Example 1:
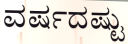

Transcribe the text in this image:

ವರ್ಷದಷ್ಟು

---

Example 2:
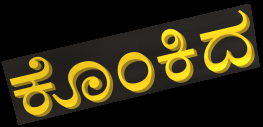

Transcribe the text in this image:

ಕೊಂಕಿದ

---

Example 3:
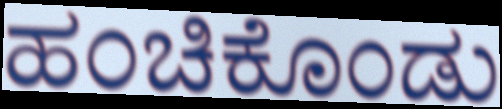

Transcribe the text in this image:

ಹಂಚಿಕೊಂಡು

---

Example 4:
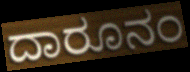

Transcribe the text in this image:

ದಾರೂನಂ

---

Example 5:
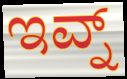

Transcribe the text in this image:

ಇವ್ನ್